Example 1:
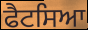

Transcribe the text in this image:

ਫੈਟਸਿਆ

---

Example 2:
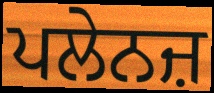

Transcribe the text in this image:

ਪਲੇਨਜ਼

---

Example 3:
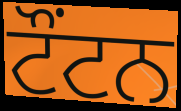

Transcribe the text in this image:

ਟੌਂਟਨ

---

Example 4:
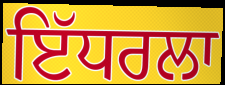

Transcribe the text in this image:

ਇੱਧਰਲਾ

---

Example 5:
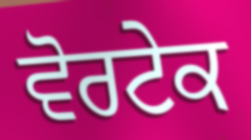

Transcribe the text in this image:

ਵੋਰਟੇਕ